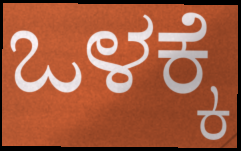
ಒಳಕ್ಕೆ